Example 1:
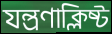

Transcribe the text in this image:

যন্ত্রণাক্লিষ্ট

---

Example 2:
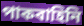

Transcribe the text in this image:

পাকবাহিনি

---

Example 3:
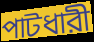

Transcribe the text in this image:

পাটধারী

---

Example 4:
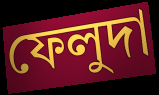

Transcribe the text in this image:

ফেলুদা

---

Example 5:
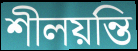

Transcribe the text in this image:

শীলয়ন্তি